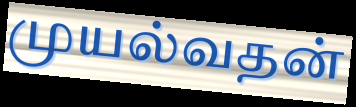
முயல்வதன்